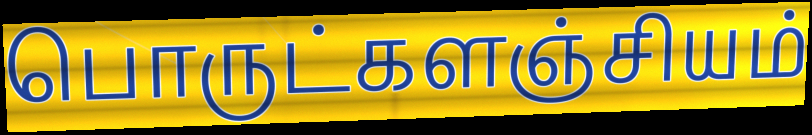
பொருட்களஞ்சியம்